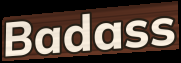
Badass